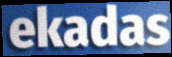
ekadas